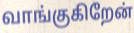
வாங்குகிறேன்